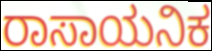
ರಾಸಾಯನಿಕ